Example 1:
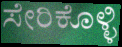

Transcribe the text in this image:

ಸೇರಿಕೊಳ್ಳಿ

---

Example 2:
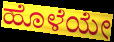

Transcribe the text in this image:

ಹೊಳೆಯೇ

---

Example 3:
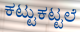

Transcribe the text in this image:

ಕಟ್ಟುಕಟ್ಟಲೆ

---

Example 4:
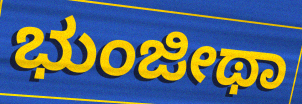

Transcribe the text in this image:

ಭುಂಜೀಥಾ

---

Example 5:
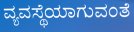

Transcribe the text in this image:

ವ್ಯವಸ್ಥೆಯಾಗುವಂತೆ